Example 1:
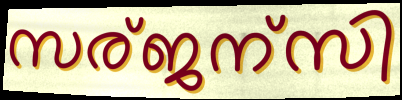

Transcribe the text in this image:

സര്ജന്സി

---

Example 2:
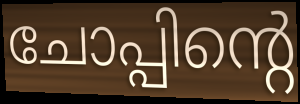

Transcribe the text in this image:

ചോപ്പിന്റെ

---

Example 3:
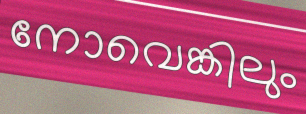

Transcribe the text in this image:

നോവെങ്കിലും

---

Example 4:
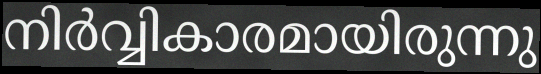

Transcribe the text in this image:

നിർവ്വികാരമായിരുന്നു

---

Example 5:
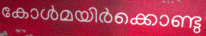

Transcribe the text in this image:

കോൾമയിർക്കൊണ്ടു